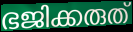
ഭജിക്കരുത്